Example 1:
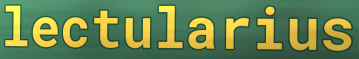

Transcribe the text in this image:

lectularius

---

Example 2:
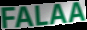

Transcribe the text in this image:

FALAA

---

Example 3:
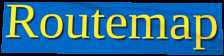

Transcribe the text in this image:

Routemap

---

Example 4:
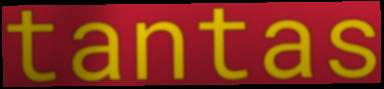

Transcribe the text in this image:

tantas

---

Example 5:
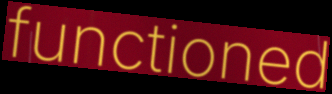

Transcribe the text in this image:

functioned